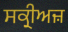
ਸਕ੍ਰੀਅਜ਼